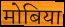
मोबिया